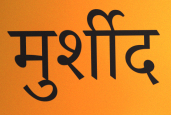
मुर्शीद